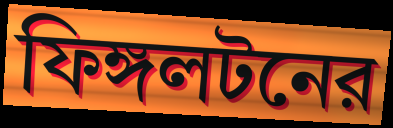
ফিঙ্গলটনের